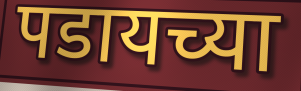
पडायच्या